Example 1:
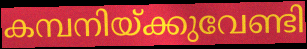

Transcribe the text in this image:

കമ്പനിയ്ക്കുവേണ്ടി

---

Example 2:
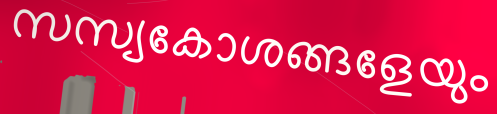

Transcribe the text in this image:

സസ്യകോശങ്ങളേയും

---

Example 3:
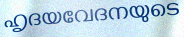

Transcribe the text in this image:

ഹൃദയവേദനയുടെ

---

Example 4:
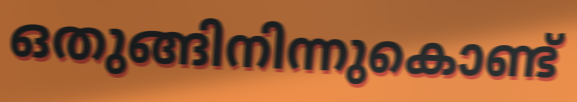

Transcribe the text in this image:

ഒതുങ്ങിനിന്നുകൊണ്ട്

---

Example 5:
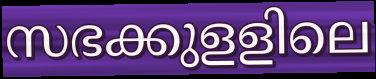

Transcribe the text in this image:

സഭക്കുളളിലെ